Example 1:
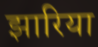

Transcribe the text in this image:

झारिया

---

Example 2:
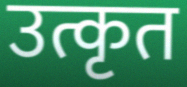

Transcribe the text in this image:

उत्कृत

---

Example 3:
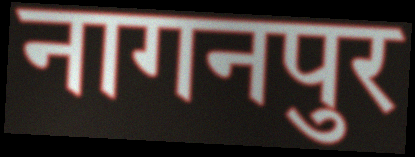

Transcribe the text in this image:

नागनपुर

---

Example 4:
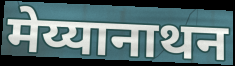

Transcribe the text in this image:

मेय्यानाथन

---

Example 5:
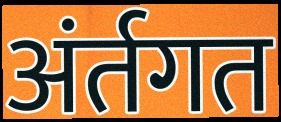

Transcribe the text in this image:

अंर्तगत